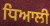
ਧਿਆਲੀ